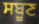
ਸਬੂਣ